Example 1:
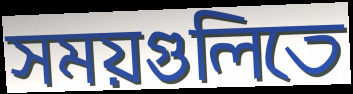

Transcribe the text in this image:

সময়গুলিতে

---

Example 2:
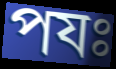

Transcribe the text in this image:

পযঃ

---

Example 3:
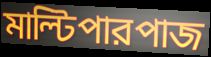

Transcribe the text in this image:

মাল্টিপারপাজ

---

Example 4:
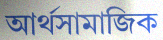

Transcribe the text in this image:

আর্থসামাজিক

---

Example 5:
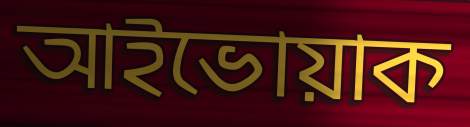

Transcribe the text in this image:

আইভোয়াক